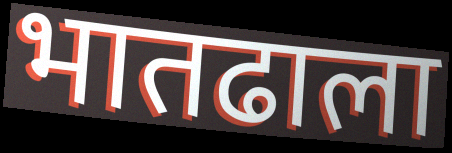
भातढाला